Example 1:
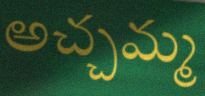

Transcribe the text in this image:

అచ్చమ్మ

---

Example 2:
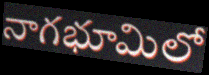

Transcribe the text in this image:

నాగభూమిలో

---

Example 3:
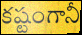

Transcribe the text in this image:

కష్టంగానీ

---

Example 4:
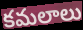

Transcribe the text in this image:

కమలాలు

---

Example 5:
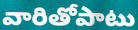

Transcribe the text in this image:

వారితోపాటు